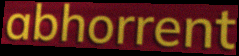
abhorrent